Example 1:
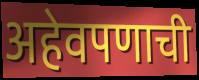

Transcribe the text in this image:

अहेवपणाची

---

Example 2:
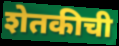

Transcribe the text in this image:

शेतकीची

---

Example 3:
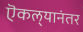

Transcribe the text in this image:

ऎकल्यानंतर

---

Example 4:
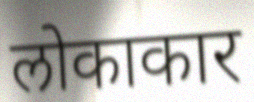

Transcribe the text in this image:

लोकाकार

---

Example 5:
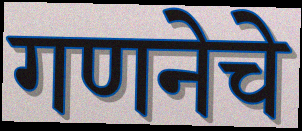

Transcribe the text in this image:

गणनेचे